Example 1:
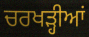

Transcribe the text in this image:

ਚਰਖੜ੍ਹੀਆਂ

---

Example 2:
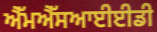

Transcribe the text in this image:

ਐੱਮਐੱਸਆਈਈਡੀ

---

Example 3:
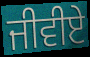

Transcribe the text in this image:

ਜੀਵੀਏ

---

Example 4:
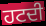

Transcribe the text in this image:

ਹਟਦੀ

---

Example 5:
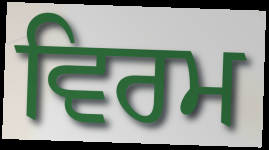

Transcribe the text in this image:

ਵਿਰਮ